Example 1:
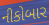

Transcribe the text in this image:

નીકોબાર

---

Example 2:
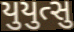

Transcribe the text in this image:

યુયુત્સુ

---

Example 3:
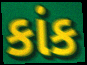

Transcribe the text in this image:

કાંક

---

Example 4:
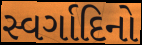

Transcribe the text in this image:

સ્વર્ગાદિનો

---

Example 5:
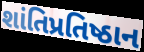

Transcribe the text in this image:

શાંતિપ્રતિષ્ઠાન